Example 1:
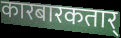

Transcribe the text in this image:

कारबारकतार्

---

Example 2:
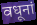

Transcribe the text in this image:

वधूनां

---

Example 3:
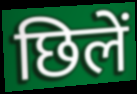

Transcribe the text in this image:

छिलें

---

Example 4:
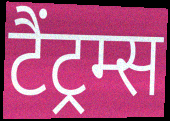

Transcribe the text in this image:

टैंट्रम्स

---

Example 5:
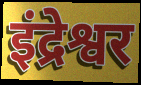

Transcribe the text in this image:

इंद्रेश्वर